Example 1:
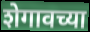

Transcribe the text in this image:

शेगावच्या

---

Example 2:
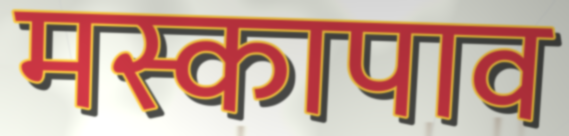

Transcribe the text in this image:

मस्कापाव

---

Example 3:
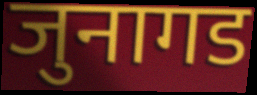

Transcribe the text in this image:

जुनागड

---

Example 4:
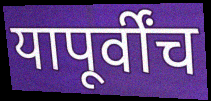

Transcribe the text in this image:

यापूर्वींच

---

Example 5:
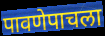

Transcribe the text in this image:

पावणेपाचला